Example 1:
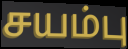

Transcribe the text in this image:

சயம்பு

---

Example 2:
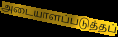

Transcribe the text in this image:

அடையாளப்படுத்தப்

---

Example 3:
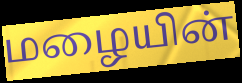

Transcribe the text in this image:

மழையின்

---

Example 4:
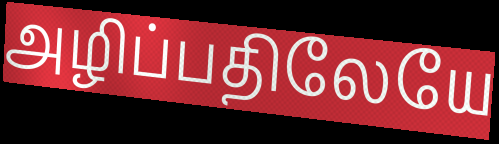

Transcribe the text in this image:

அழிப்பதிலேயே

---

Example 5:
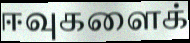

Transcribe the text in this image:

ஈவுகளைக்